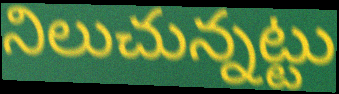
నిలుచున్నట్టు